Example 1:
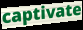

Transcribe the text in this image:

captivate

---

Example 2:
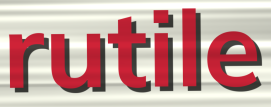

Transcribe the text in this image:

rutile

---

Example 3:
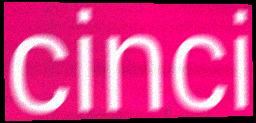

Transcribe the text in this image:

cinci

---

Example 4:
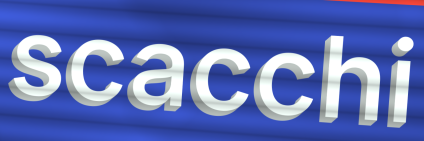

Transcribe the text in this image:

scacchi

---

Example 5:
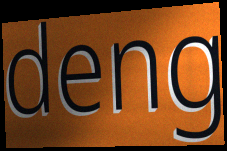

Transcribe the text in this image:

deng